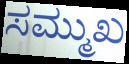
ಸಮ್ಮುಖ